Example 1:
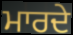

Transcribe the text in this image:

ਮਾਰਦੇ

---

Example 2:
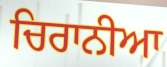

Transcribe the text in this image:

ਚਿਰਾਨੀਆ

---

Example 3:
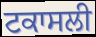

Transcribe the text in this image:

ਟਕਾਸਲੀ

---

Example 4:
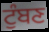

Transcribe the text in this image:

ਟੁੰਬਣ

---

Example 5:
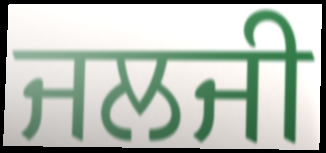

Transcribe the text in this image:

ਜਲਜੀ